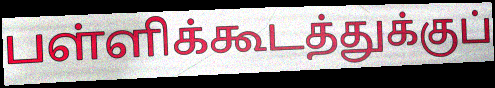
பள்ளிக்கூடத்துக்குப்